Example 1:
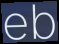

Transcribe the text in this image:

eb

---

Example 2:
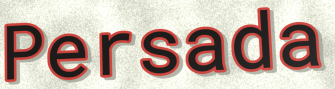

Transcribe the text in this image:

Persada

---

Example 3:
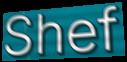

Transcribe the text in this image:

Shef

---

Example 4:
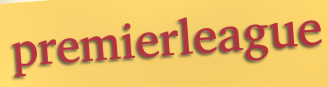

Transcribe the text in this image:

premierleague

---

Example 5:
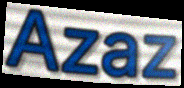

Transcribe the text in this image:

Azaz